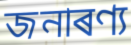
জনাৰণ্য